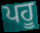
ਪਹੂ